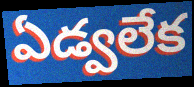
ఏడ్వలేక